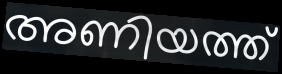
അണിയത്ത്